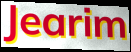
Jearim